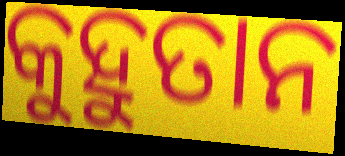
କୁହୁତାନ